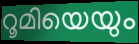
റൂമിയെയും